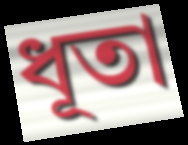
ধূতা